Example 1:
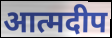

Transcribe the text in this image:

आत्मदीप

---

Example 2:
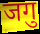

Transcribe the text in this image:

जगु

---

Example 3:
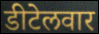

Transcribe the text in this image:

डीटेलवार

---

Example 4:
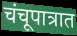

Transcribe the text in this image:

चंचूपात्रात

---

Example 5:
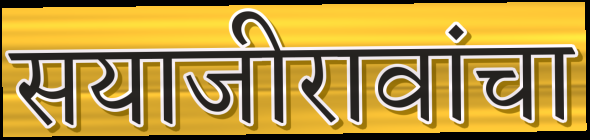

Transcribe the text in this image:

सयाजीरावांचा